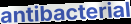
antibacterial